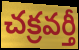
చక్రవర్తీ